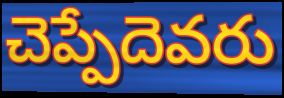
చెప్పేదెవరు